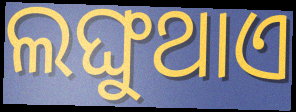
ଲଙ୍ଘୁଥାଏ